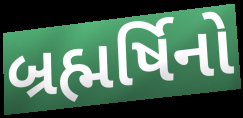
બ્રહ્મર્ષિનો